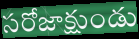
సరోజాక్షుండు